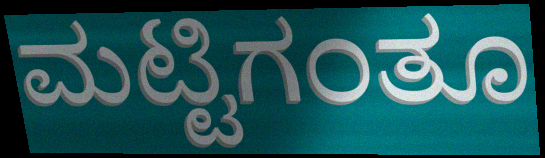
ಮಟ್ಟಿಗಂತೂ